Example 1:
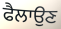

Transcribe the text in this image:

ਫੈਲਾਉਣ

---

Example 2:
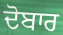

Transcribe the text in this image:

ਦੋਬਾਰ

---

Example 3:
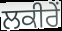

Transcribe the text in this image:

ਲਕੀਰੇਂ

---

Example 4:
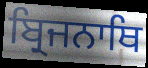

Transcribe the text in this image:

ਬ੍ਰਿਜਨਾਥਿ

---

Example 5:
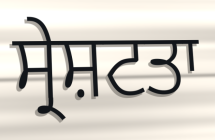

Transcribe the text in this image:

ਸ੍ਰੇਸ਼ਟਤਾ